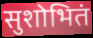
सुशोभितं